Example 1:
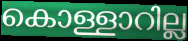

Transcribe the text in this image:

കൊള്ളാറില്ല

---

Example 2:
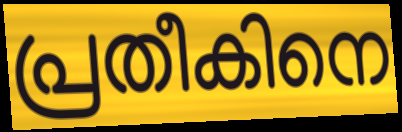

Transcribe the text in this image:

പ്രതീകിനെ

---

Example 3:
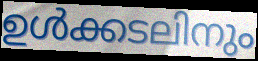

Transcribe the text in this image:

ഉൾക്കടലിനും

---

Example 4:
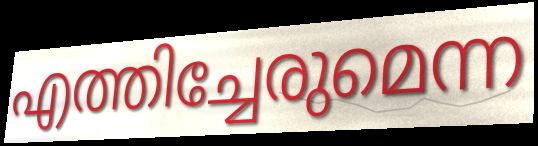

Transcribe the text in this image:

എത്തിച്ചേരുമെന്ന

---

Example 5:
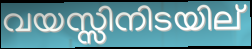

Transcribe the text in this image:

വയസ്സിനിടയില്